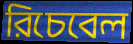
রিচেবেল